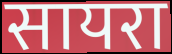
सायरा